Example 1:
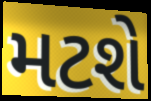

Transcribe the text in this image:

મટશે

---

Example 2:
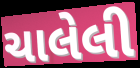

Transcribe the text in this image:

ચાલેલી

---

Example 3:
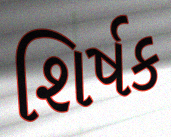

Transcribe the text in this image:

શિર્ષક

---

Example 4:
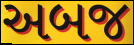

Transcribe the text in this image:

અબજ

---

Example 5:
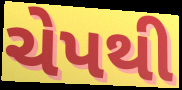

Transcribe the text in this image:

ચેપથી